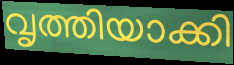
വൃത്തിയാക്കി